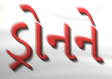
ડ્રોનને